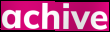
achive